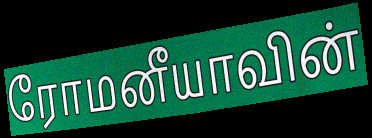
ரோமனீயாவின்